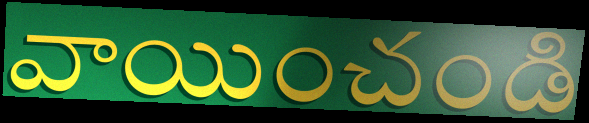
వాయించండి